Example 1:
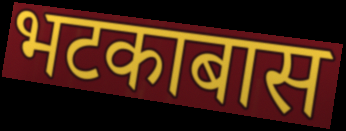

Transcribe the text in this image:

भटकाबास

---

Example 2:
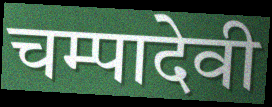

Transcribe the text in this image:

चम्पादेवी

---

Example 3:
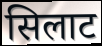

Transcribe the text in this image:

सिलाट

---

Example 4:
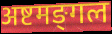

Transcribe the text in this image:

अष्टमङ्गल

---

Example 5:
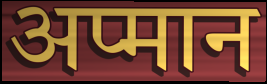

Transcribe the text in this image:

अप्मान